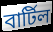
বার্টিল